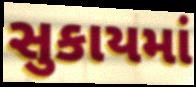
સુકાયમાં